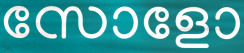
സോളോ